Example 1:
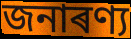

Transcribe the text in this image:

জনাৰণ্য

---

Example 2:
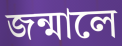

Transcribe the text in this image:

জন্মালে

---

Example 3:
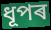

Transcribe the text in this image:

ধূপৰ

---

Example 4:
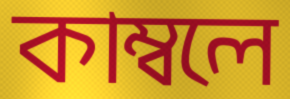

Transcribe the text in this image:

কাম্বলে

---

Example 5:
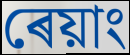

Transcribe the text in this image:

ৰেয়াং